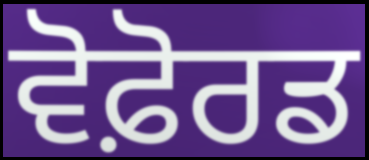
ਵੋਫ਼ੋਰਡ